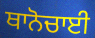
ਥਾਨੋਚਾਈ